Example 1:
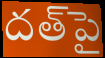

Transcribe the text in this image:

దత్‌పై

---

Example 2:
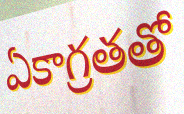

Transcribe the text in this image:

ఏకాగ్రతతో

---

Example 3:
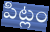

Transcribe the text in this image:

పిట్లం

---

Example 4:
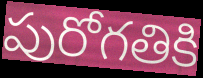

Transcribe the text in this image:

పురోగతికి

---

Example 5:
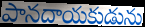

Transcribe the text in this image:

పానదాయకుడును